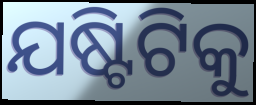
ଯଷ୍ଟିଟିକୁ